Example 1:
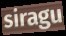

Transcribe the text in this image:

siragu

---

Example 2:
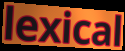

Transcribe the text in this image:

lexical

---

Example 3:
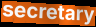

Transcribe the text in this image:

secretary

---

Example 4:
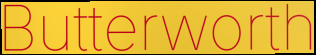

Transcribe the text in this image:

Butterworth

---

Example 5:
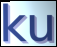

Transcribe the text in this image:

ku